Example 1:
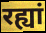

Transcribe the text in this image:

रह्यां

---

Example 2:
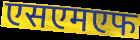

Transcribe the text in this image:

एसएमएफ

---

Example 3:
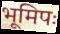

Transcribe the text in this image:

भूमिपः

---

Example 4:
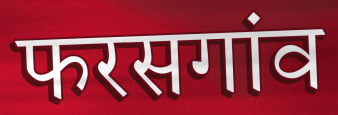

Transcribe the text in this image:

फरसगांव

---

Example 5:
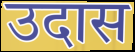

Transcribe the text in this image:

उदास